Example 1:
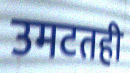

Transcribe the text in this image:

उमटतही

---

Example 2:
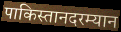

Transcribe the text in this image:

पाकिस्तानदरम्यान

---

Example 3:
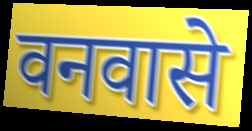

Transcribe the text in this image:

वनवासे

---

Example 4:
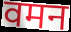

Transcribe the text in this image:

वमन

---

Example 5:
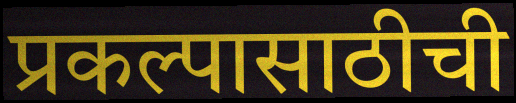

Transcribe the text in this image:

प्रकल्पासाठीची